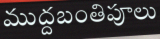
ముద్దబంతిపూలు